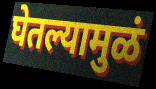
घेतल्यामुळं